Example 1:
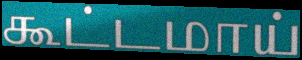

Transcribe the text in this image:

கூட்டமாய்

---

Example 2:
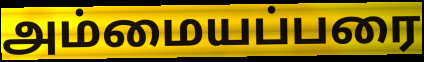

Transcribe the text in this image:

அம்மையப்பரை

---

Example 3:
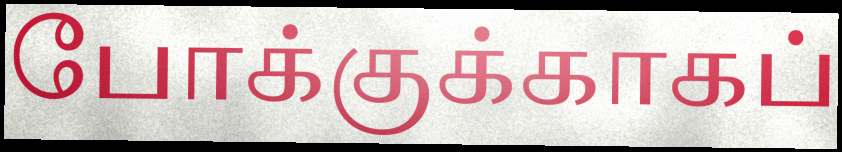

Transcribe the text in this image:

போக்குக்காகப்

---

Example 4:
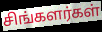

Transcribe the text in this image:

சிங்களர்கள்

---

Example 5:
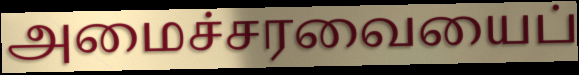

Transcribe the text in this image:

அமைச்சரவையைப்